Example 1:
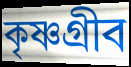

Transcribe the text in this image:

কৃষ্ণগ্রীব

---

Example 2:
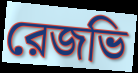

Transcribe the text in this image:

রেজভি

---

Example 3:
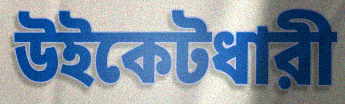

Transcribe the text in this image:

উইকেটধারী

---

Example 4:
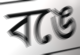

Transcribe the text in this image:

বঙে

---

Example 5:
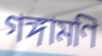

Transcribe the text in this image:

গঙ্গামণি